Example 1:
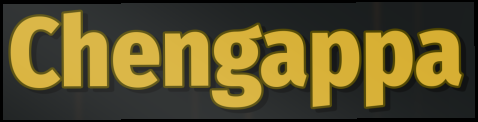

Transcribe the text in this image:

Chengappa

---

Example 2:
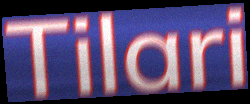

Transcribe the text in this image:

Tilari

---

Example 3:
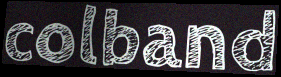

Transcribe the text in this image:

colband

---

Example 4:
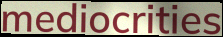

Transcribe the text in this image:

mediocrities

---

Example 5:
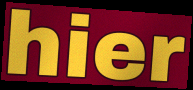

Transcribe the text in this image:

hier